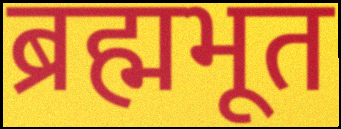
ब्रह्मभूत